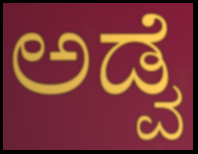
ಅಡ್ವೆ